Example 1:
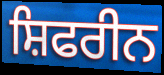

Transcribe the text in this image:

ਸ਼ਿਫਰੀਨ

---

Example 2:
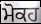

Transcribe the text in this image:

ਮੋਕਹ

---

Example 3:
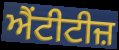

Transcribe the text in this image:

ਐਂਟੀਟੀਜ਼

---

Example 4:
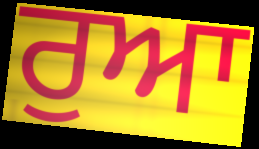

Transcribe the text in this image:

ਰੁਆ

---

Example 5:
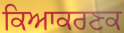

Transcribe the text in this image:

ਕਿਆਕਰਣਕ